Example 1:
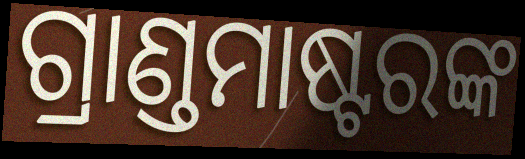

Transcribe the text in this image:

ଗ୍ରାଣ୍ଡମାଷ୍ଟରଙ୍କ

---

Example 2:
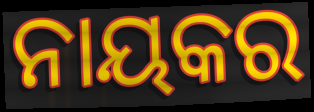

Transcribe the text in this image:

ନାୟକର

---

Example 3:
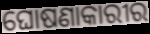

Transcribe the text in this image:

ଘୋଷଣାକାରୀର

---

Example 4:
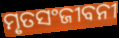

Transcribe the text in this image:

ମୃତସଂଜୀବନୀ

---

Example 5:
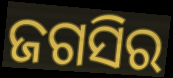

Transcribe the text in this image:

ଜଗସିର